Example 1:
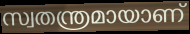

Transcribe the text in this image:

സ്വതന്ത്രമായാണ്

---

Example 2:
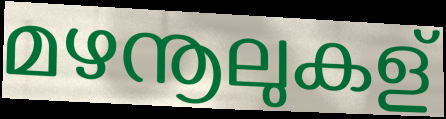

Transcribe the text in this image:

മഴനൂലുകള്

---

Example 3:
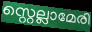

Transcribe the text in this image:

സ്റ്റെല്ലാമേരി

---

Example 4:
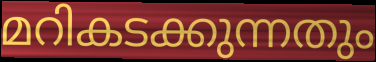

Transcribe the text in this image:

മറികടക്കുന്നതും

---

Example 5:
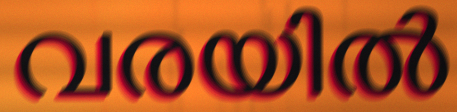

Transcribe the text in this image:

വരയിൽ